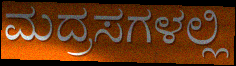
ಮದ್ರಸಗಳಲ್ಲಿ